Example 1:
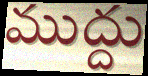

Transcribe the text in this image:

ముద్దు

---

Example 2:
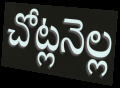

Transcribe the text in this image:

చోట్లనెల్ల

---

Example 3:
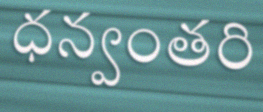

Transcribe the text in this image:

ధన్వంతరి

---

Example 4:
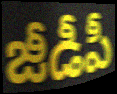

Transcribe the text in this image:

జీడీపీ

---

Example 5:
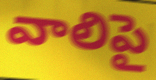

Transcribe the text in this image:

వాలిపై